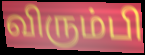
விரும்பி